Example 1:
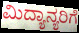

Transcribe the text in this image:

ಮಿದ್ಯಾನ್ಯರಿಗೆ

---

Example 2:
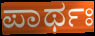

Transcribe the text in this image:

ಪಾರ್ಥಃ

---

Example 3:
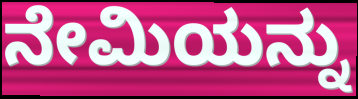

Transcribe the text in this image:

ನೇಮಿಯನ್ನು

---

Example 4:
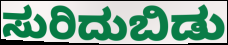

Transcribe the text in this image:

ಸುರಿದುಬಿಡು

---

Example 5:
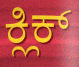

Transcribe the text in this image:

ಕ್ಲಿಕ್